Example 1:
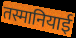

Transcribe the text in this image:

तस्मानियाई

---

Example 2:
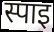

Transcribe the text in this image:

स्पाइ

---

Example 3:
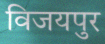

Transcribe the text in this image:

विजयपुर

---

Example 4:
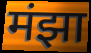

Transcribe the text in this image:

मंझा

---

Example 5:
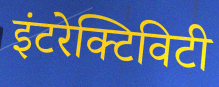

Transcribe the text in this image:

इंटरेक्टिविटी